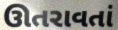
ઊતરાવતાં